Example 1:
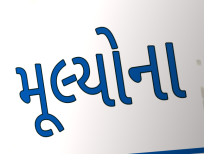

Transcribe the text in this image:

મૂલ્યોના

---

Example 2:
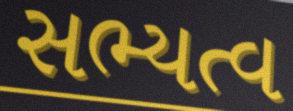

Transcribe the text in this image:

સભ્યત્વ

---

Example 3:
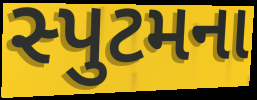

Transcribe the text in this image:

સ્પુટમના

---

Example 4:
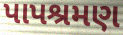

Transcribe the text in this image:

પાપશ્રમણ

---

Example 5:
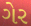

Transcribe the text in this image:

ગેર